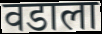
वडाला